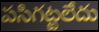
పసిగట్టలేదు